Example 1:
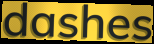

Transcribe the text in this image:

dashes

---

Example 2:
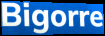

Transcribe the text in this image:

Bigorre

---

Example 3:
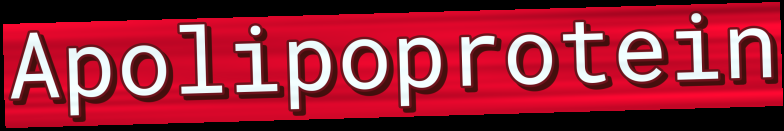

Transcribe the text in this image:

Apolipoprotein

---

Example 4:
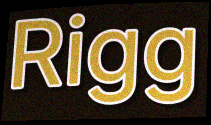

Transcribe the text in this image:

Rigg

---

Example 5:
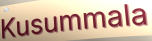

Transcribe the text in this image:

Kusummala